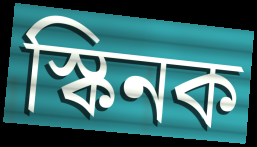
স্কিনক